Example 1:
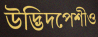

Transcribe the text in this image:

উদ্ভিদপেশীও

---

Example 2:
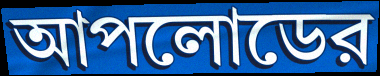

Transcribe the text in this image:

আপলোডের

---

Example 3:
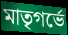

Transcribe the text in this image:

মাতৃগর্ভে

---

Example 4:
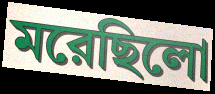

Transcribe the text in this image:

মরেছিলো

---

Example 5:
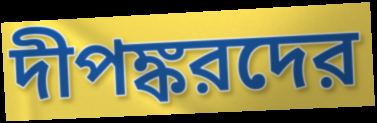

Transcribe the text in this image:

দীপঙ্করদের